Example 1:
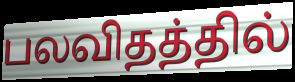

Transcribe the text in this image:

பலவிதத்தில்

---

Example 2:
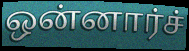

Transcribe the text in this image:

ஒன்னார்ச்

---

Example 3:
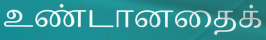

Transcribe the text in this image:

உண்டானதைக்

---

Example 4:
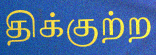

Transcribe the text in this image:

திக்குற்ற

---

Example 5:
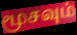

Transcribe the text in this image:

மூசவும்